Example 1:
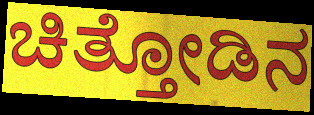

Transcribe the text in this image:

ಚಿತ್ತೋಡಿನ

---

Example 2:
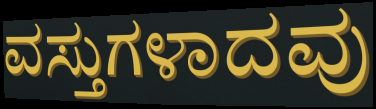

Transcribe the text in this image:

ವಸ್ತುಗಳಾದವು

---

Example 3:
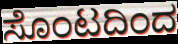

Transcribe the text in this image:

ಸೊಂಟದಿಂದ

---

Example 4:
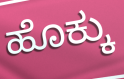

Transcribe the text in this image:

ಹೊಕ್ಕು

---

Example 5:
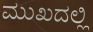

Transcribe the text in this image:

ಮುಖದಲ್ಲಿ